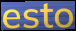
esto